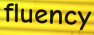
fluency